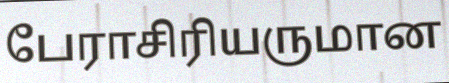
பேராசிரியருமான